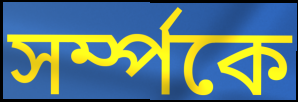
সৰ্ম্পকে